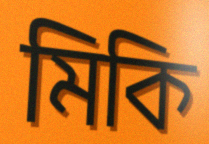
মিকি